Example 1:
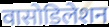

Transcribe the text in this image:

वासोडिलेशन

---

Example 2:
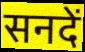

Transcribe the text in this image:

सनदें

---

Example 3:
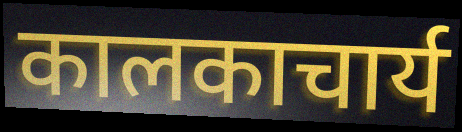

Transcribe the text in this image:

कालकाचार्य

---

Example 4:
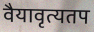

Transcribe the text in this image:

वैयावृत्यतप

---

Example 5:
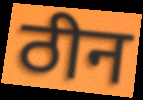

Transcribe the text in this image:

ठीन